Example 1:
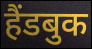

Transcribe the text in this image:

हैंडबुक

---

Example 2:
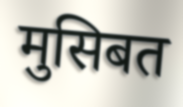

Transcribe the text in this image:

मुसिबत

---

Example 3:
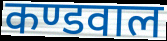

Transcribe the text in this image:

कण्डवाल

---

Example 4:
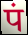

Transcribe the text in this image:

पं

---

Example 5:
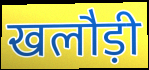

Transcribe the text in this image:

खलौड़ी